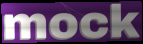
mock